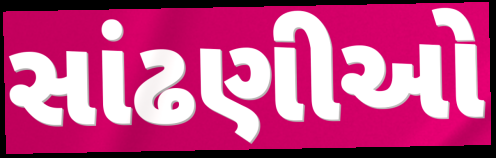
સાંઢણીઓ